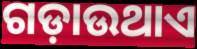
ଗଡ଼ାଉଥାଏ